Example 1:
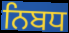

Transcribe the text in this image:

ਨਿਬਧ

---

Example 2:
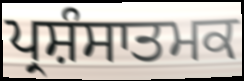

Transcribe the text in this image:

ਪ੍ਰਸ਼ੰਸਾਤਮਕ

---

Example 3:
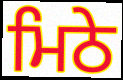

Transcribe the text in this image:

ਮਿਠੇ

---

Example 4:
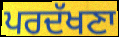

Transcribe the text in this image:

ਪਰਦੱਖਣਾ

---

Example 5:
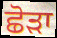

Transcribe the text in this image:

ਛੋੜਾ